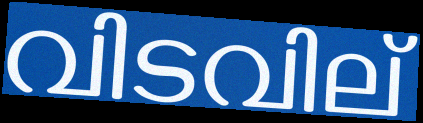
വിടവില്